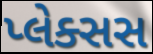
પ્લેક્સસ